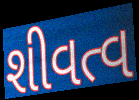
શીવત્વ